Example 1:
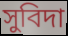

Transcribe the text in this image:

সুবিদা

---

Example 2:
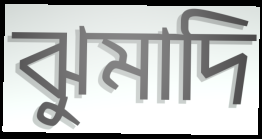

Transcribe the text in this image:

ঝুমাদি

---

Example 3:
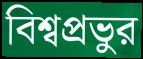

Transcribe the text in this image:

বিশ্বপ্রভুর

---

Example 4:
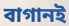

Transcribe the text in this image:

বাগানই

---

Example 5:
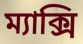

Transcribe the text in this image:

ম্যাক্সি